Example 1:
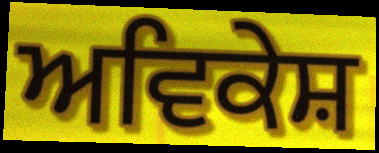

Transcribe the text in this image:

ਅਵਿਕੇਸ਼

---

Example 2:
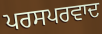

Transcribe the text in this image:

ਪਰਸਪਰਵਾਦ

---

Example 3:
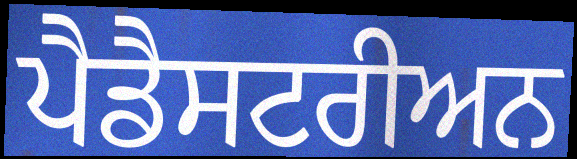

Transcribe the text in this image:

ਪੈਡੈਸਟਰੀਅਨ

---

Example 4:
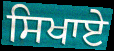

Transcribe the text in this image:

ਸਿਖਾਏ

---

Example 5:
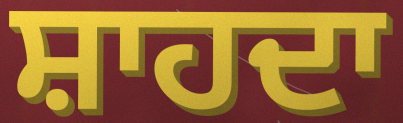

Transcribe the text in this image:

ਸ਼ਾਹਦਾ